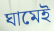
ঘামেই